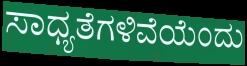
ಸಾಧ್ಯತೆಗಳಿವೆಯೆಂದು